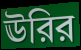
ঊরির